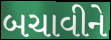
બચાવીને